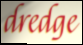
dredge